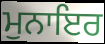
ਮੁਨਾਇਰ